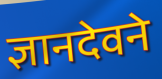
ज्ञानदेवने